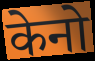
केनो